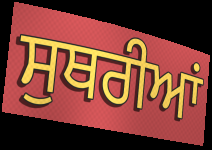
ਸੁਥਰੀਆਂ